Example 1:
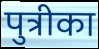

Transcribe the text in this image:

पुत्रीका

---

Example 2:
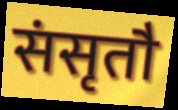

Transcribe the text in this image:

संसृतौ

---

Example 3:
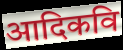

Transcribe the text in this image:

आदिकवि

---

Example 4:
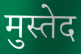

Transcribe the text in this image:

मुस्तेद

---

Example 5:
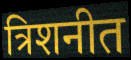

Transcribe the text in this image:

त्रिशनीत